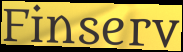
Finserv